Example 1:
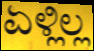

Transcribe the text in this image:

ಏಳ್ಲಿಲ್ಲ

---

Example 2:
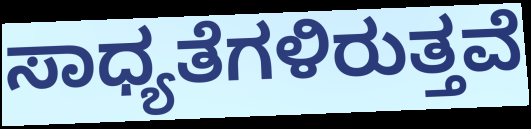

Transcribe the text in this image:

ಸಾಧ್ಯತೆಗಳಿರುತ್ತವೆ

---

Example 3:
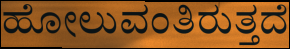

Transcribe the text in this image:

ಹೋಲುವಂತಿರುತ್ತದೆ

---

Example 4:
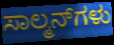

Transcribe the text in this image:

ಸಾಲ್ಮನ್‌ಗಳು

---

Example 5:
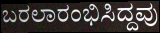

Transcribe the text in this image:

ಬರಲಾರಂಭಿಸಿದ್ದವು